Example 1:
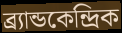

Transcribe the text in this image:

ব্র্যান্ডকেন্দ্রিক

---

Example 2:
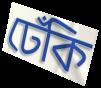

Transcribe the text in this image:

ঢেঁকি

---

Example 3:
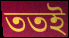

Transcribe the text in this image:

ততই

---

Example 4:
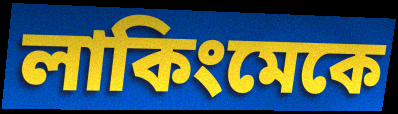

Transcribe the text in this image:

লাকিংমেকে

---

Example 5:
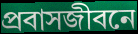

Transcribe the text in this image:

প্রবাসজীবনে